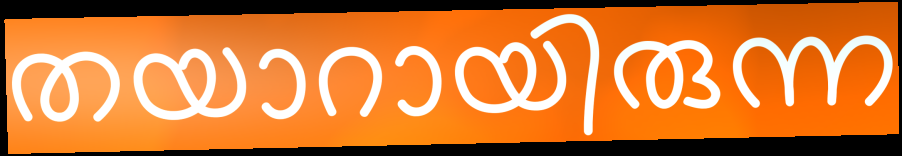
തയാറായിരുന്ന